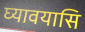
घ्यावयासि